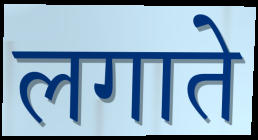
लगाते